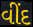
વીંદ